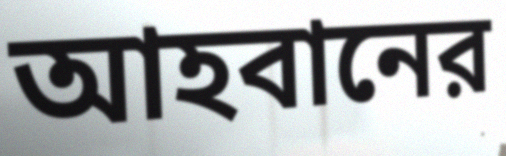
আহবানের